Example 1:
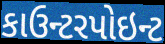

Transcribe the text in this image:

કાઉન્ટરપોઇન્ટ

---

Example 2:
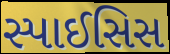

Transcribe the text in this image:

સ્પાઈસિસ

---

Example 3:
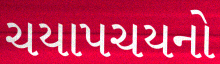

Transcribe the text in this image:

ચયાપચયનો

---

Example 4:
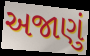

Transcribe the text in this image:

અજાણું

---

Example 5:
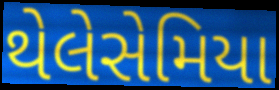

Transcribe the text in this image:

થેલેસેમિયા